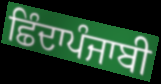
ਛਿੰਦਾਪੰਜਾਬੀ